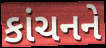
કાંચનને